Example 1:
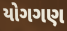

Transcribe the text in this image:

યોગગણ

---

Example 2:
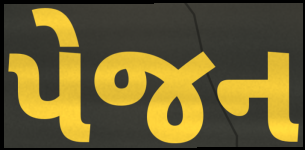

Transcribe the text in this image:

પેજન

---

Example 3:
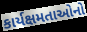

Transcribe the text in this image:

કાર્યક્ષમતાઓનો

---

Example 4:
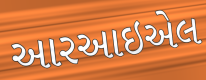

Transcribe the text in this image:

આરઆઇએલ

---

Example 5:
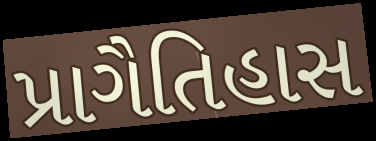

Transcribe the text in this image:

પ્રાગૈતિહાસ